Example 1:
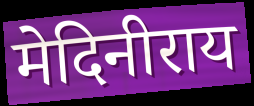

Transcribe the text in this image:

मेदिनीराय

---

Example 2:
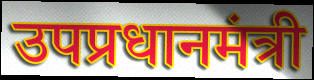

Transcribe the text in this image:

उपप्रधानमंत्री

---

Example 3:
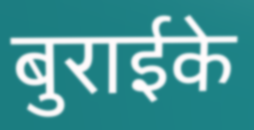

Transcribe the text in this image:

बुराईके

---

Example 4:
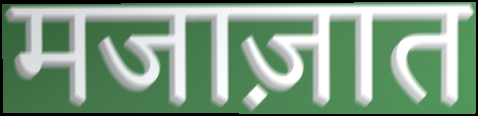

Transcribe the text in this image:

मजाज़ात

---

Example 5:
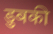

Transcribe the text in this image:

डुबकी